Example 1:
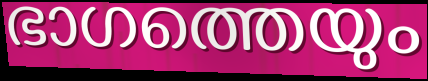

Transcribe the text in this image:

ഭാഗത്തെയും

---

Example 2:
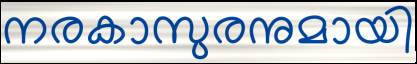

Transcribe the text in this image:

നരകാസുരനുമായി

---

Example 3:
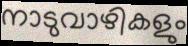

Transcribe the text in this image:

നാടുവാഴികളും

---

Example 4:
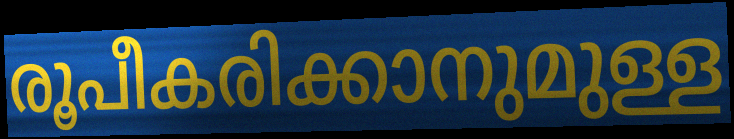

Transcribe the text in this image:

രൂപീകരിക്കാനുമുള്ള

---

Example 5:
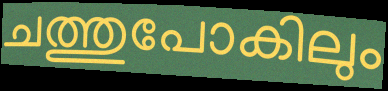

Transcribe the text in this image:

ചത്തുപോകിലും